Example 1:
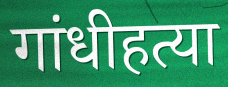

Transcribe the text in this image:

गांधीहत्या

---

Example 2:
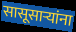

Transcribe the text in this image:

सासूसाऱ्यांना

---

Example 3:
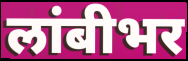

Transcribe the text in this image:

लांबीभर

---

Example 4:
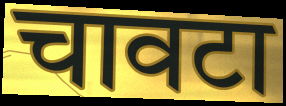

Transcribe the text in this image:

चावटा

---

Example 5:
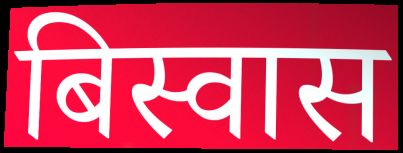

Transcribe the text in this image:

बिस्वास